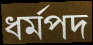
ধর্মপদ